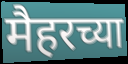
मैहरच्या